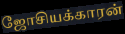
ஜோசியக்காரன்